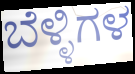
ಬೆಳ್ಳಿಗಳ